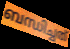
ബന്ധിച്ചത്